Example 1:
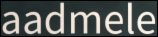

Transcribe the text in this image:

aadmele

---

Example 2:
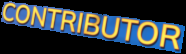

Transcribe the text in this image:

CONTRIBUTOR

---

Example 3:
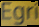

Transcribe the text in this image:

Egri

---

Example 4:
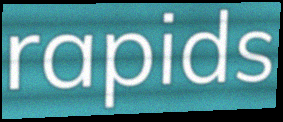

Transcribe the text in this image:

rapids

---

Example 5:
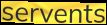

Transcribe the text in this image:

servents